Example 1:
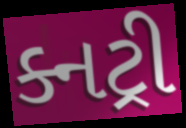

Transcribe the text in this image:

ક્નટ્રી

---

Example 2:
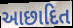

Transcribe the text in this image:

આછાદિત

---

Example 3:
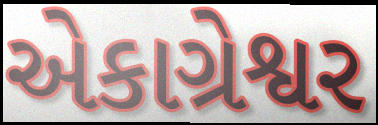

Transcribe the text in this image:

એકાગ્રેશ્વર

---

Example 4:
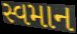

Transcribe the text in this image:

સ્વમાન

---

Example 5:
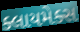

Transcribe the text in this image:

ક્લાયમેક્સ